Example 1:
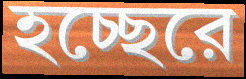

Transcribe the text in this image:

হচ্ছেরে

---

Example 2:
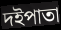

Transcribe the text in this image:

দইপাতা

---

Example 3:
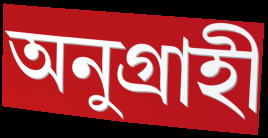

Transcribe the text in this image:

অনুগ্রাহী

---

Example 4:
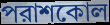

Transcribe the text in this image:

পরাশকোল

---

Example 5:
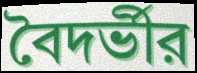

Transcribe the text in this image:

বৈদর্ভীর